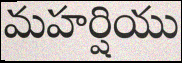
మహర్షియు